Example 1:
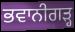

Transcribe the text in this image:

ਭਵਾਨੀਗੜ੍ਹ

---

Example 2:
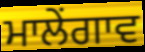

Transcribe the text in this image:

ਮਾਲੇਂਗਾਵ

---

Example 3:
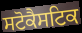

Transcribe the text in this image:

ਸਟੋਕੈਸਟਿਕ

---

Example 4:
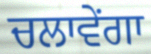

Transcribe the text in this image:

ਚਲਾਵੇਂਗਾ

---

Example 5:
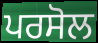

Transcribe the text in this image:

ਪਰਸੋਲ